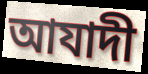
আযাদী